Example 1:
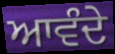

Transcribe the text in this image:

ਆਵੰਦੇ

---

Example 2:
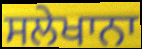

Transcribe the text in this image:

ਸਲੇਖਾਨਾ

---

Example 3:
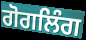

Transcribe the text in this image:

ਗੋਗਲਿੰਗ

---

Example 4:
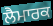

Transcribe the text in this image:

ਲੈਮਾਰਕ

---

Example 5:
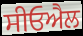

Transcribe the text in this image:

ਸੀਓਐਲ